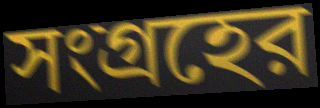
সংগ্রহের